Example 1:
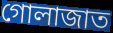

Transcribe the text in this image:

গোলাজাত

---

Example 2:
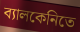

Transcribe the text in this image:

ব্যালকেনিতে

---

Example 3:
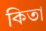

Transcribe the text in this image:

কিতা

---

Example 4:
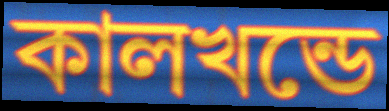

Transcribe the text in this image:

কালখন্ডে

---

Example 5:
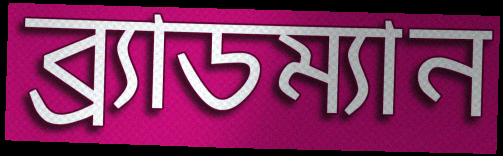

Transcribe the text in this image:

ব্র্যাডম্যান